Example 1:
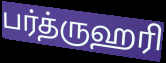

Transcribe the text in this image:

பர்த்ருஹரி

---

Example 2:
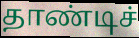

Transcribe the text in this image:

தாண்டிச்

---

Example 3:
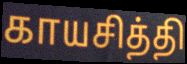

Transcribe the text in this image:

காயசித்தி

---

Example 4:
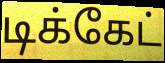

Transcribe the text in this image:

டிக்கேட்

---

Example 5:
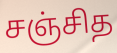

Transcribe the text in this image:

சஞ்சித